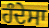
ਹੰਦੇਸਾ